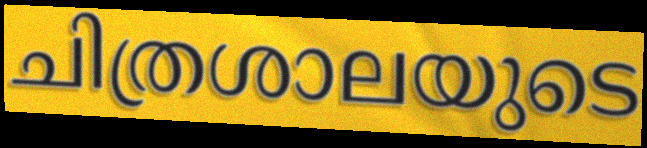
ചിത്രശാലയുടെ